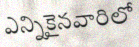
ఎన్నికైనవారిలో